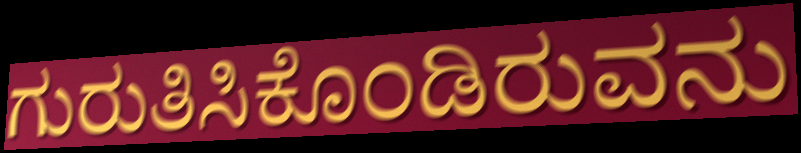
ಗುರುತಿಸಿಕೊಂಡಿರುವನು